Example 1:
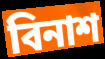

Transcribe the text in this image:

বিনাশ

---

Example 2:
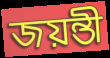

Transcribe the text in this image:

জয়ন্তী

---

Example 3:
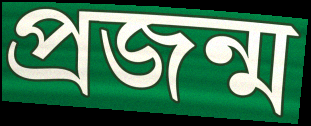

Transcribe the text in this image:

প্ৰজন্ম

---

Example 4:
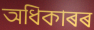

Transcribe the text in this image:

অধিকাৰৰ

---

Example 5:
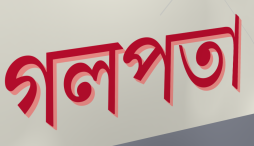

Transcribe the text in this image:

গলপতা